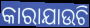
କାରାଯାଉଚି